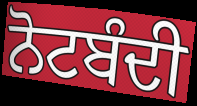
ਨੋਟਬੰਦੀ